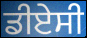
ਡੀਏਸੀ